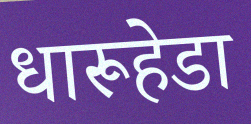
धारूहेडा